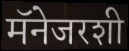
मॅनेजरशी